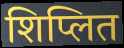
शिप्लित